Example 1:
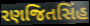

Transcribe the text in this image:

રણજિતસિંહ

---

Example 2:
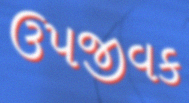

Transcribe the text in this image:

ઉપજીવક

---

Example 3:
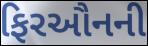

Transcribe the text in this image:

ફિરઔનની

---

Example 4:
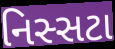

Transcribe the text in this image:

નિસ્સટા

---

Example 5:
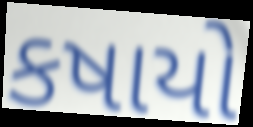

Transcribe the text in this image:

કષાયો